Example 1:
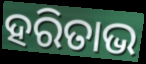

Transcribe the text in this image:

ହରିତାଭ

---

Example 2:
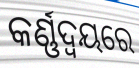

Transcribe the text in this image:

କର୍ଣ୍ଣଦ୍ୱୟରେ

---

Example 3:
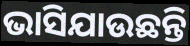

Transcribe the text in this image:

ଭାସିଯାଉଛନ୍ତି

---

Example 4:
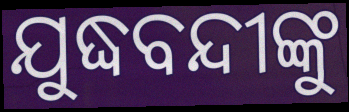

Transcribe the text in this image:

ଯୁଦ୍ଧବନ୍ଦୀଙ୍କୁ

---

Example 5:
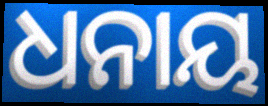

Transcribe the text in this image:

ଧନାୟ